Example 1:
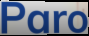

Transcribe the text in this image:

Paro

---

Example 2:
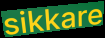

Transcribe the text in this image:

sikkare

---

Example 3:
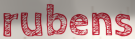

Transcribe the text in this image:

rubens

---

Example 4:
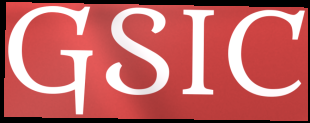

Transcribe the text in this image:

GSIC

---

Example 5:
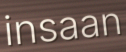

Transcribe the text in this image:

insaan